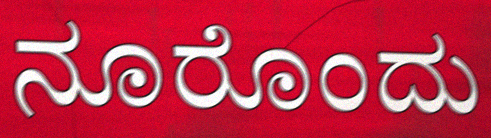
ನೂರೊಂದು